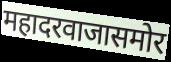
महादरवाजासमोर